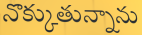
నొక్కుతున్నాను